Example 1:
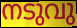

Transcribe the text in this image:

നടുവു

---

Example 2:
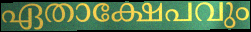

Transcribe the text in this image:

ഏതാക്ഷേപവും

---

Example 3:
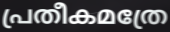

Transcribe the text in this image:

പ്രതീകമത്രേ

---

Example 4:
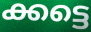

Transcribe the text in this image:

ക്കട്ടെ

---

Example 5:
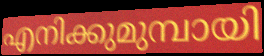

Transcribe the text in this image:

എനിക്കുമുമ്പായി